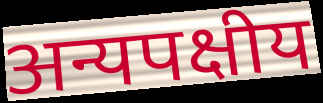
अन्यपक्षीय